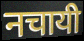
नचायी